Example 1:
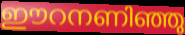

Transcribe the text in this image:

ഈറനണിഞ്ഞു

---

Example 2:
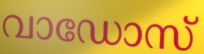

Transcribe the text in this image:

വാഡോസ്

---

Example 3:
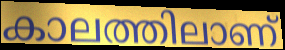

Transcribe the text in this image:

കാലത്തിലാണ്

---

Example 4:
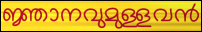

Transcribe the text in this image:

ജ്ഞാനവുമുള്ളവൻ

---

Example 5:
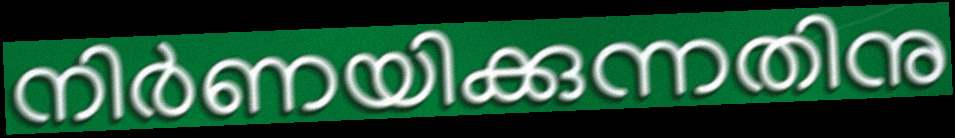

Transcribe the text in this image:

നിർണയിക്കുന്നതിനു